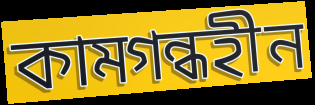
কামগন্ধহীন